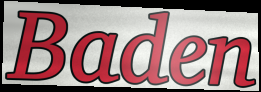
Baden